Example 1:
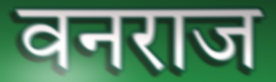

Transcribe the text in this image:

वनराज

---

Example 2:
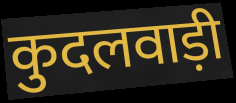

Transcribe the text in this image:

कुदलवाड़ी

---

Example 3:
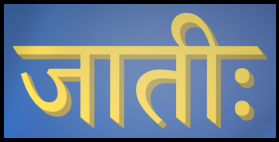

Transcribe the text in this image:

जातीः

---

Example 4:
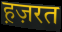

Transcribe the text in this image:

ह़ज़रत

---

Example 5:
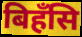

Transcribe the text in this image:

बिहँसि